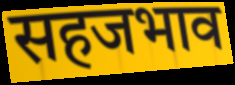
सहजभाव